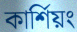
কার্শিয়ং